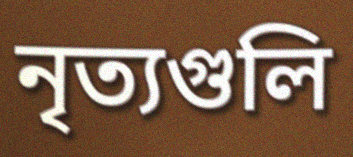
নৃত্যগুলি